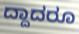
ದ್ದಾದರೂ